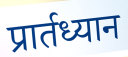
प्रार्तध्यान